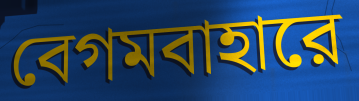
বেগমবাহারে